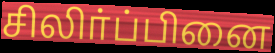
சிலிர்ப்பினை